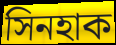
সিনহাক